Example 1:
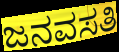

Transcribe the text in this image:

ಜನವಸತಿ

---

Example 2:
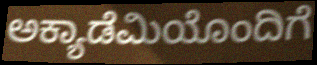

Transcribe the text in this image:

ಅಕ್ಯಾಡೆಮಿಯೊಂದಿಗೆ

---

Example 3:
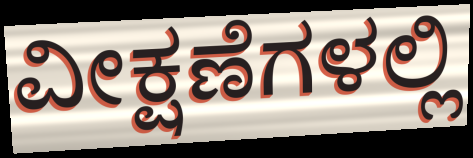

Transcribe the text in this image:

ವೀಕ್ಷಣೆಗಳಲ್ಲಿ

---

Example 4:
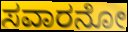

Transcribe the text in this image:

ಸವಾರನೋ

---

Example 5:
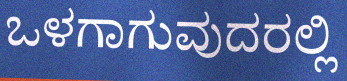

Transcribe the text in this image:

ಒಳಗಾಗುವುದರಲ್ಲಿ